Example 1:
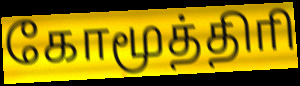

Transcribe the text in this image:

கோமூத்திரி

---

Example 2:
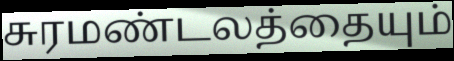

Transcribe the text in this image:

சுரமண்டலத்தையும்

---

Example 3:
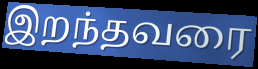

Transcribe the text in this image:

இறந்தவரை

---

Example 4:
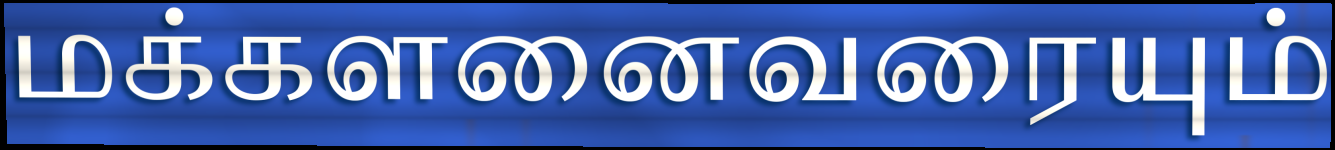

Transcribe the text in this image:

மக்களனைவரையும்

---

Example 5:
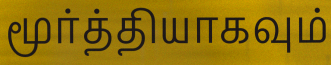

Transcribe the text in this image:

மூர்த்தியாகவும்